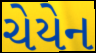
ચેયેન